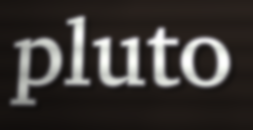
pluto